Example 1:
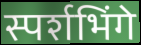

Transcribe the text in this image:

स्पर्शभिंगे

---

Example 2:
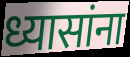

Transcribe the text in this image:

ध्यासांना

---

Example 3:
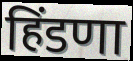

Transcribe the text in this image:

हिंडणा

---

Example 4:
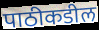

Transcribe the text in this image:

पाठीकडील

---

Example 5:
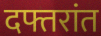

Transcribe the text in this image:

दफ्तरांत